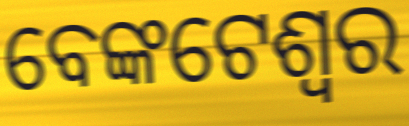
ବେଙ୍କଟେଶ୍ୱର